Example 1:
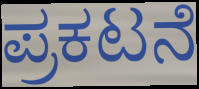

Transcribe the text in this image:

ಪ್ರಕಟನೆ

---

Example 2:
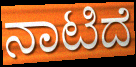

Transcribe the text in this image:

ನಾಟಿದೆ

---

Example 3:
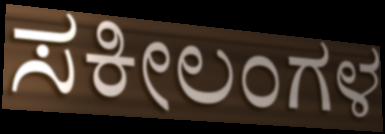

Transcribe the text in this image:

ಸಕೀಲಂಗಳ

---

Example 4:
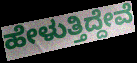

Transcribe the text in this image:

ಹೇಳುತ್ತಿದ್ದೇವೆ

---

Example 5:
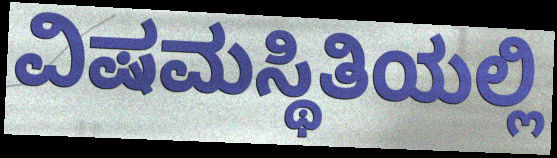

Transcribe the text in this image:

ವಿಷಮಸ್ಥಿತಿಯಲ್ಲಿ